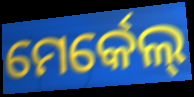
ମେର୍କେଲ୍